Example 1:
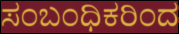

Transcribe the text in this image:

ಸಂಬಂಧಿಕರಿಂದ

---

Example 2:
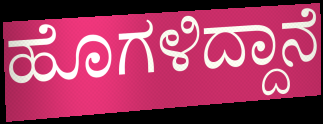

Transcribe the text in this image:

ಹೊಗಳಿದ್ದಾನೆ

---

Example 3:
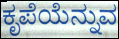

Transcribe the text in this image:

ಕೃಪೆಯೆನ್ನುವ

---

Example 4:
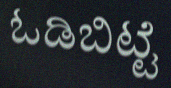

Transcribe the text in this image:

ಓಡಿಬಿಟ್ಟೆ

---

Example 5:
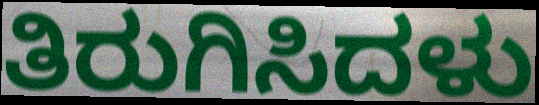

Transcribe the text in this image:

ತಿರುಗಿಸಿದಳು